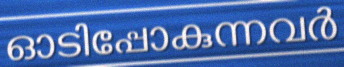
ഓടിപ്പോകുന്നവർ